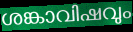
ശങ്കാവിഷവും